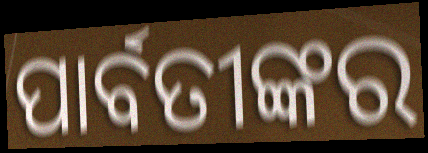
ପାର୍ବତୀଙ୍କର